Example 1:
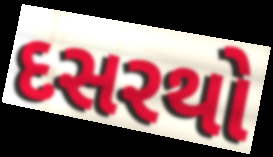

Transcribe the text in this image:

દસરથો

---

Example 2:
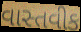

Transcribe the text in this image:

વાસ્તવીક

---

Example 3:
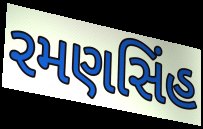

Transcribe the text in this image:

રમણસિંહ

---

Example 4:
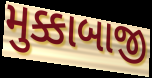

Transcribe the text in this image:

મુક્કાબાજી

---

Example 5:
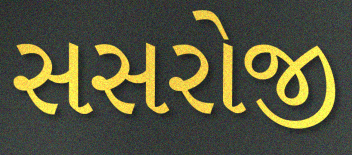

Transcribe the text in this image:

સસરોજી